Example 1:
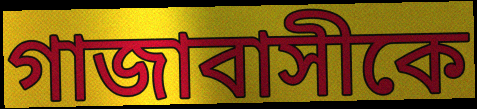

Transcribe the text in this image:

গাজাবাসীকে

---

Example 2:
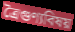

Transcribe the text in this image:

ত্রৈগুণ্যবিষয়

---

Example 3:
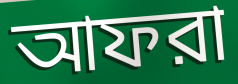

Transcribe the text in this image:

আফরা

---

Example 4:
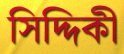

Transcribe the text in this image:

সিদ্দিকী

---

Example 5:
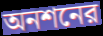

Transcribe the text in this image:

অনশনের